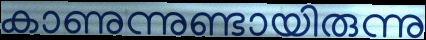
കാണുന്നുണ്ടായിരുന്നു